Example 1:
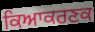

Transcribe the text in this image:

ਕਿਆਕਰਣਕ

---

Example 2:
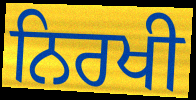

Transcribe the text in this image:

ਨਿਰਖੀ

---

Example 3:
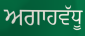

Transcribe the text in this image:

ਅਗਾਹਵੱਧੂ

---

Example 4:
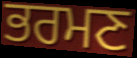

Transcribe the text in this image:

ਭਰਮਣ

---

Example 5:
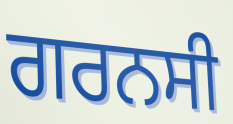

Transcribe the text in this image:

ਗਰਨਸੀ